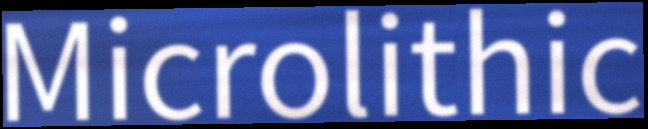
Microlithic